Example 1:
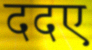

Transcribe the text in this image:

ददए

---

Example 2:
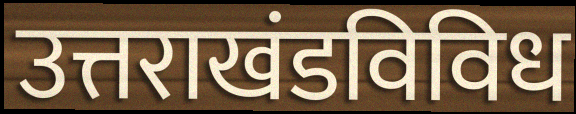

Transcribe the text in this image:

उत्तराखंडविविध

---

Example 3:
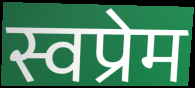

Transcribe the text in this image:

स्वप्रेम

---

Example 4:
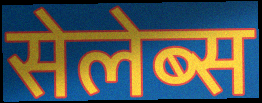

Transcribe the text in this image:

सेलेब्स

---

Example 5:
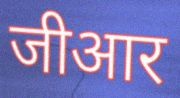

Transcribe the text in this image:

जीआर